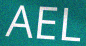
AEL